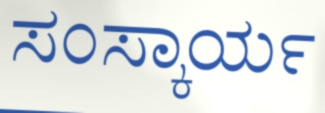
ಸಂಸ್ಕಾರ್ಯ